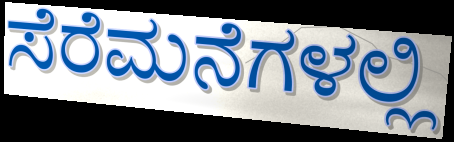
ಸೆರೆಮನೆಗಳಲ್ಲಿ